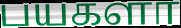
பயகளா